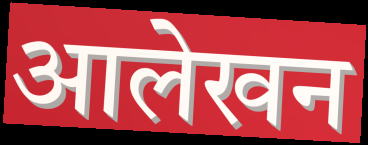
आलेखन